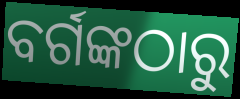
ବର୍ଗଙ୍କଠାରୁ